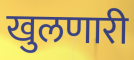
खुलणारी